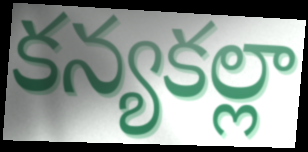
కన్యకల్లా